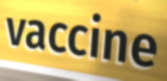
vaccine